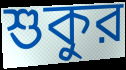
শুকুর